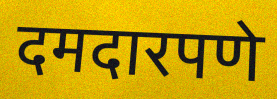
दमदारपणे